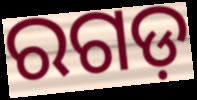
ରଗଡ଼